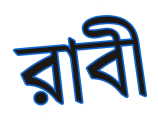
রাবী